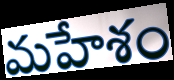
మహేశం